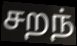
சறந்